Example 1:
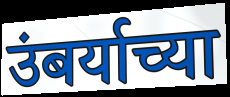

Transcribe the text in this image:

उंबर्याच्या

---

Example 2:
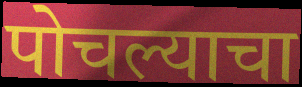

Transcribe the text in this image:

पोचल्याचा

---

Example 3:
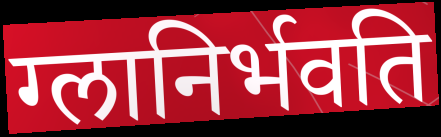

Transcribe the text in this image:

ग्लानिर्भवति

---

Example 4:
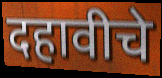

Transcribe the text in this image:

दहावीचे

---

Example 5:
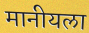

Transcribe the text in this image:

मानीयला